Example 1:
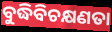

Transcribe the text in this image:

ବୁଦ୍ଧିବିଚକ୍ଷଣତା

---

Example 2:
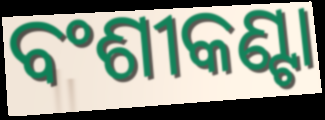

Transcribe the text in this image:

ବଂଶୀକଣ୍ଟା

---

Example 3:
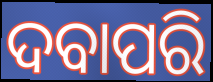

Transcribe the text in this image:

ଦବାପରି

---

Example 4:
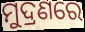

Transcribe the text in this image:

ମୁଦ୍ରଣରେ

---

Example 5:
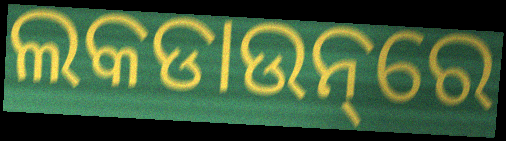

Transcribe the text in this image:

ଲକଡାଉନ୍‌ରେ